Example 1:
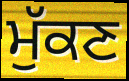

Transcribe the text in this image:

ਮੁੱਕਣ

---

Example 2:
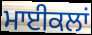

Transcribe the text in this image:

ਮਾਈਕਲਾਂ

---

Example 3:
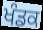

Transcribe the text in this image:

ਖੰਡਕ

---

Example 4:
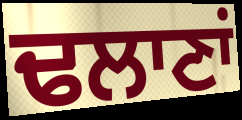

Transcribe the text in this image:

ਢਲਾਣਾਂ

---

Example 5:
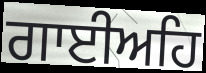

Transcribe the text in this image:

ਗਾਈਅਹਿ